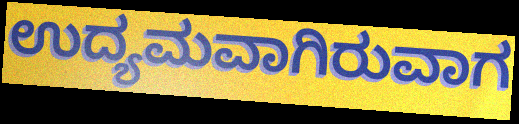
ಉದ್ಯಮವಾಗಿರುವಾಗ